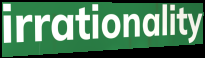
irrationality